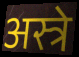
अस्त्रे